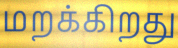
மறக்கிறது